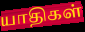
யாதிகள்